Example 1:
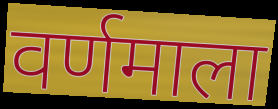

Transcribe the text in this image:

वर्णमाला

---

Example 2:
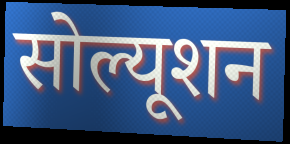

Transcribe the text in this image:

सोल्‍यूशन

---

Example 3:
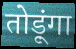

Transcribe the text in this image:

तोड़ूंगा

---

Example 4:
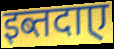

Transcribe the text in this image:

इब्तदाए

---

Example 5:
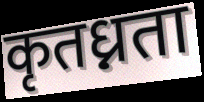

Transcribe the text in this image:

कृतध्नता